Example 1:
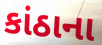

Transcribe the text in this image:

કાંઠાના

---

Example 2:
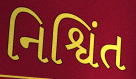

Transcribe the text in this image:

નિશ્વિંત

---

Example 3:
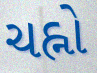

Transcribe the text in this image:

ચહ્નો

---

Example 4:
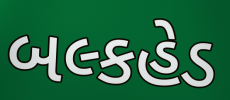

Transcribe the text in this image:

બલ્કહેડ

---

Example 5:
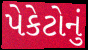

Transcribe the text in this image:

પેકેટોનું